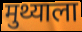
मुथ्याला